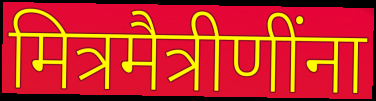
मित्रमैत्रीणींना